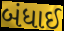
બંધાઈ